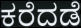
ಕರೆದಡೆ